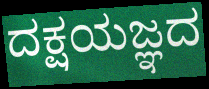
ದಕ್ಷಯಜ್ಞದ